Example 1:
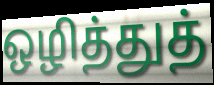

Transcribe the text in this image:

ஒழித்துத்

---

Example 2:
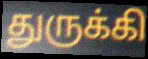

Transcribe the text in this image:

துருக்கி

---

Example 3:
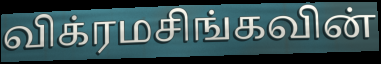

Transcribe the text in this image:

விக்ரமசிங்கவின்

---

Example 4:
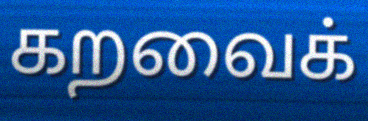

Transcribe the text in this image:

கறவைக்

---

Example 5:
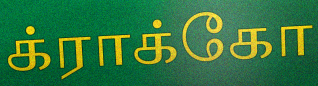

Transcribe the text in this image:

க்ராக்கோ